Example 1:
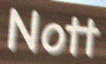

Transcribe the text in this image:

Nott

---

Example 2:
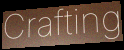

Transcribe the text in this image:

Crafting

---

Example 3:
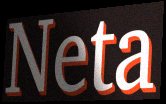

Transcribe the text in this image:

Neta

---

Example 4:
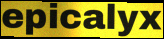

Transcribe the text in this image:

epicalyx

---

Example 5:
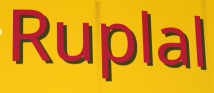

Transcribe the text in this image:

Ruplal